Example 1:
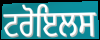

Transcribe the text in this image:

ਟਰੋਇਲਸ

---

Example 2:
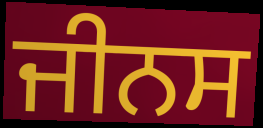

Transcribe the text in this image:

ਜੀਨਸ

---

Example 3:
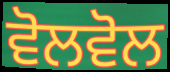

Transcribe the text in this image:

ਵੋਲਵੋਲ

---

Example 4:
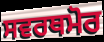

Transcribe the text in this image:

ਸਵਰਥਮੋਰ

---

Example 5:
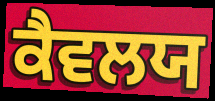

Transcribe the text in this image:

ਕੈਵਲਯ